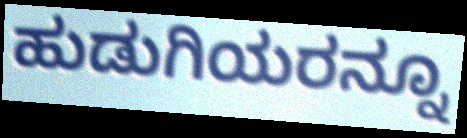
ಹುಡುಗಿಯರನ್ನೂ